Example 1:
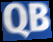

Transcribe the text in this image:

QB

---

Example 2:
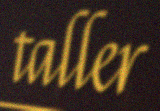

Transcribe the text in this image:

taller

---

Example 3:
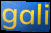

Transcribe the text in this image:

gali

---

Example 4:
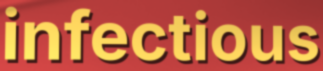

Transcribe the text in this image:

infectious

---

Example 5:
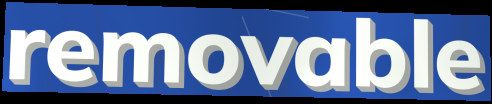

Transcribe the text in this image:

removable